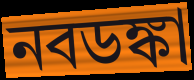
নবডঙ্কা